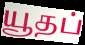
யூதப்